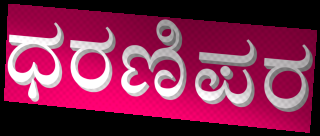
ಧರಣಿಪರ